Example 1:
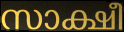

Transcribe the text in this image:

സാക്ഷീ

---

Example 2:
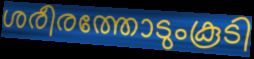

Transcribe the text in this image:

ശരീരത്തോടുംകൂടി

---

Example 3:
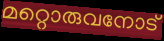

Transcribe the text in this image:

മറ്റൊരുവനോട്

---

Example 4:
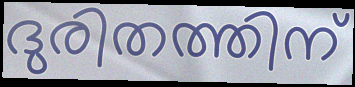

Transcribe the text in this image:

ദുരിതത്തിന്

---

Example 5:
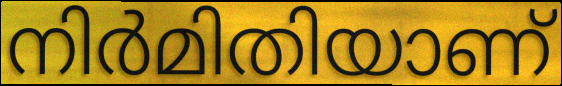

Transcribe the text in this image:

നിർമിതിയാണ്